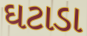
ઘટાડા